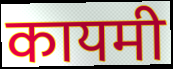
कायमी